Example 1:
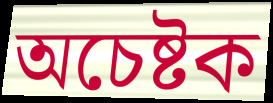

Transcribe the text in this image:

অচেষ্টক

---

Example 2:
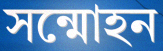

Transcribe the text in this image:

সন্মোহন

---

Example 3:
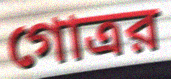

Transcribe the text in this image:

গোত্রর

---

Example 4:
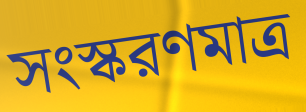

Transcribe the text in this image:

সংস্করণমাত্র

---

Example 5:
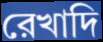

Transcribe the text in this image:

রেখাদি